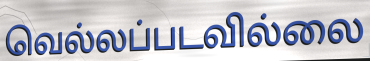
வெல்லப்படவில்லை